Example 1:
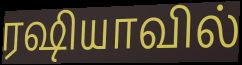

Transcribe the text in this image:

ரஷியாவில்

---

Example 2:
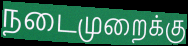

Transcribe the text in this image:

நடைமுறைக்கு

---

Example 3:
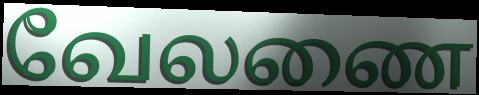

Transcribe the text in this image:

வேலணை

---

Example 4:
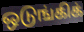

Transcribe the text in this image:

ஒடுங்கிக்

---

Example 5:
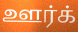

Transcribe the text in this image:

ஊர்க்